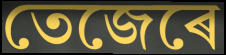
তেজেৰে